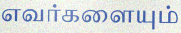
எவர்களையும்